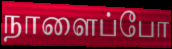
நாளைப்போ